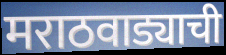
मराठवाड्याची